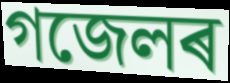
গজেলৰ